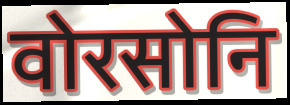
वोरसोनि